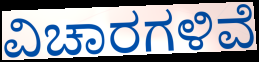
ವಿಚಾರಗಳಿವೆ